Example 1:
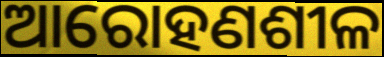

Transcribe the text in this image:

ଆରୋହଣଶୀଳ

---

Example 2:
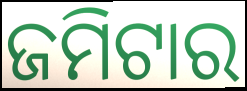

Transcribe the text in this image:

ଜମିଟାର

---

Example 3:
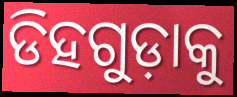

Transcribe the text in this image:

ଡିହଗୁଡ଼ାକୁ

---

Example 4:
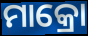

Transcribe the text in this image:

ମାକ୍ରୋ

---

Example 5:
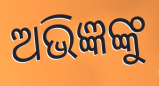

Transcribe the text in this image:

ଅଭିଜ୍ଞଙ୍କୁ